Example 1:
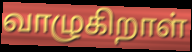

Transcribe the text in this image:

வாழுகிறாள்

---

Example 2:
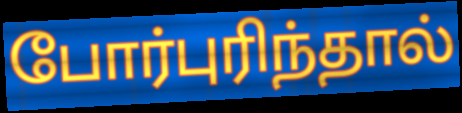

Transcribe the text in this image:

போர்புரிந்தால்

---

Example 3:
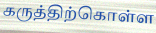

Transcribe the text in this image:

கருத்திற்கொள்ள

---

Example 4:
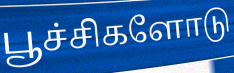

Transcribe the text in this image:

பூச்சிகளோடு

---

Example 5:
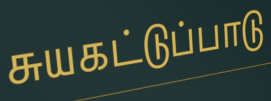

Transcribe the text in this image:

சுயகட்டுப்பாடு